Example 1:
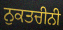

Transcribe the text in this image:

ਨੁਕਤਚੀਨੀ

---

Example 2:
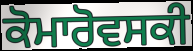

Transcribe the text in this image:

ਕੋਮਾਰੋਵਸਕੀ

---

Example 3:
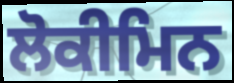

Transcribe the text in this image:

ਲੋਕੀਮਿਨ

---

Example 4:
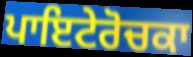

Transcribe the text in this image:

ਪਾਇਟੇਰੋਚਕਾ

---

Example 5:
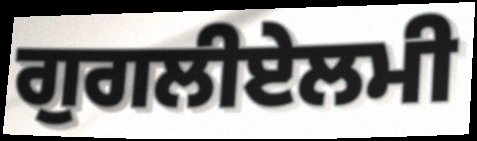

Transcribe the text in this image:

ਗੁਗਲੀਏਲਮੀ